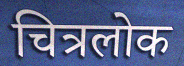
चित्रलोक